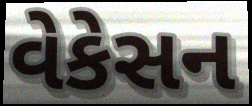
વેકેસન